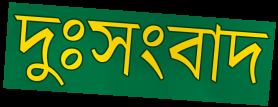
দুঃসংবাদ